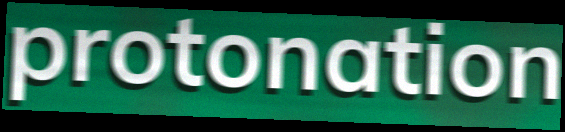
protonation